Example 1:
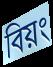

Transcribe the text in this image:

বিয়ং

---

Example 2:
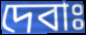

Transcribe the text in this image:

দেবাঃ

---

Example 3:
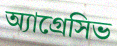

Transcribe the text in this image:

অ্যাগ্রেসিভ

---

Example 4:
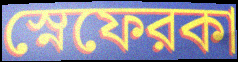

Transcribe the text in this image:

স্নেফেরকা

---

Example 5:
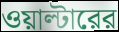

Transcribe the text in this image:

ওয়াল্টারের